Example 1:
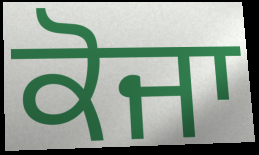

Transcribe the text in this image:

ਕੋਜਾ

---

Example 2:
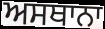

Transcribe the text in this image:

ਅਸਥਾਨਾ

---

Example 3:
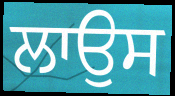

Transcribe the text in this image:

ਲਾਉਸ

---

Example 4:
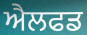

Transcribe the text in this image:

ਐਲਫਡ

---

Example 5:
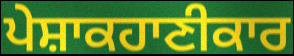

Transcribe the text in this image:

ਪੇਸ਼ਾਕਹਾਣੀਕਾਰ